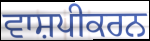
ਵਾਸ਼ਪੀਕਰਨ